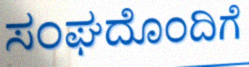
ಸಂಘದೊಂದಿಗೆ